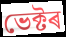
ভেক্টৰ